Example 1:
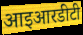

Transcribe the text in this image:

आइआरडीटी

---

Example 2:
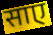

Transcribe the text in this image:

साए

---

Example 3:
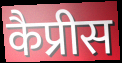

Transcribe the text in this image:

कैप्रीस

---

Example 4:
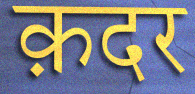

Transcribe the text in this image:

क़दर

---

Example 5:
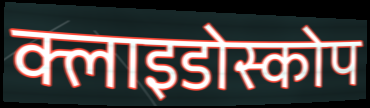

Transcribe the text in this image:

क्लाइडोस्कोप